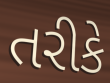
તરીકે